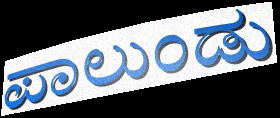
ಪಾಲುಂಡು